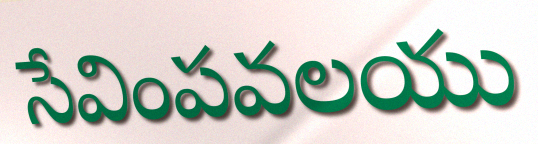
సేవింపవలయు